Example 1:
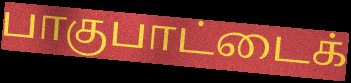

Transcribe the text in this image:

பாகுபாட்டைக்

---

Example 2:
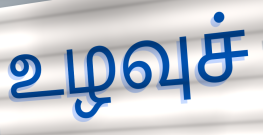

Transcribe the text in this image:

உழவுச்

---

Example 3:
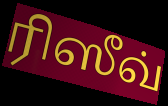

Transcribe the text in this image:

ரிஸீவ்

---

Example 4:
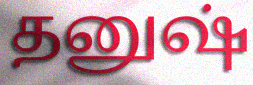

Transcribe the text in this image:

தனுஷ்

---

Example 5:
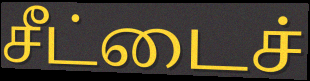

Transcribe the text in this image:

சீட்டைச்